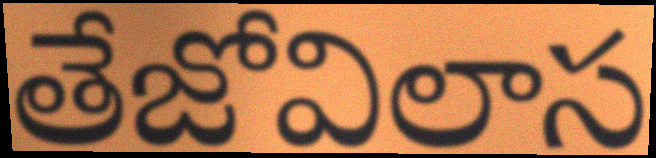
తేజోవిలాస